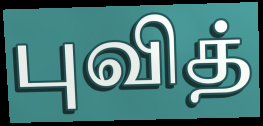
புவித்